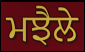
ਮਝੈਲੇ